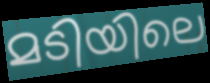
മടിയിലെ